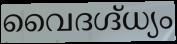
വൈദഗ്ദ്ധ്യം